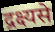
द्रक्ष्यसे